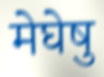
मेघेषु